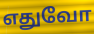
எதுவோ